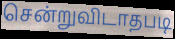
சென்றுவிடாதபடி